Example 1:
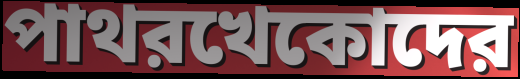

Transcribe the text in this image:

পাথরখেকোদের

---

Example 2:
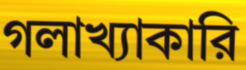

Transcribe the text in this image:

গলাখ্যাকারি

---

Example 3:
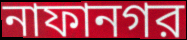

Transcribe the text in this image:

নাফানগর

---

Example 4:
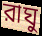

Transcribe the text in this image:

রাঘু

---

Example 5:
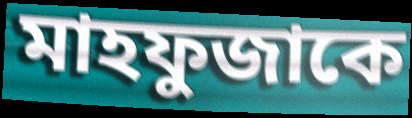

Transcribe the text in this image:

মাহফুজাকে